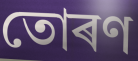
তোৰণ